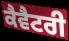
ਕੈਵੈਟਰੀ